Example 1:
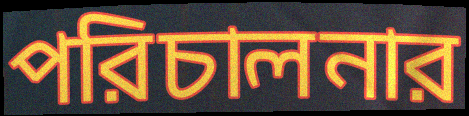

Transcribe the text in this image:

পরিচালনার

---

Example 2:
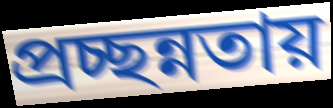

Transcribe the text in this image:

প্রচ্ছন্নতায়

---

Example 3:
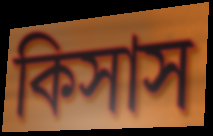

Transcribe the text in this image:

কিসাস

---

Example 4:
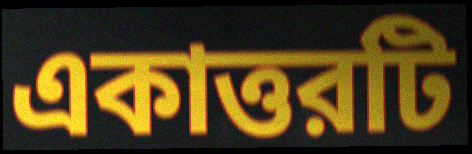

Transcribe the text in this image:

একাত্তরটি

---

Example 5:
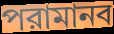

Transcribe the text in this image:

পরামানব